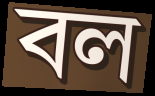
বল